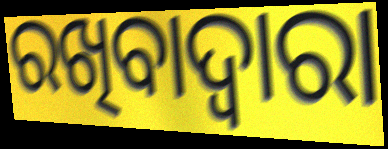
ରଖିବାଦ୍ୱାରା